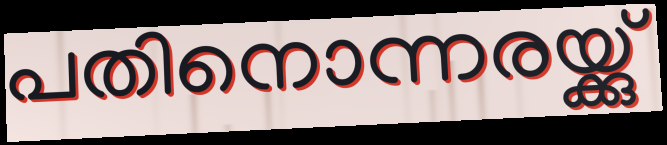
പതിനൊന്നരയ്ക്കു്